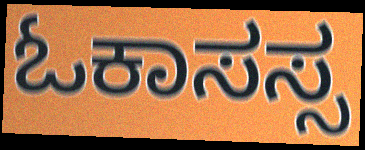
ಓಕಾಸಸ್ಸ